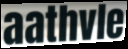
aathvle